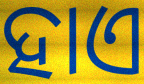
ହାଏ